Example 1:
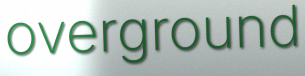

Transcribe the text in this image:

overground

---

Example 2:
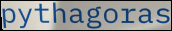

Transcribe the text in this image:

pythagoras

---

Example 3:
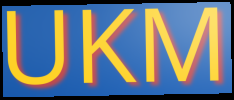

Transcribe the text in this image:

UKM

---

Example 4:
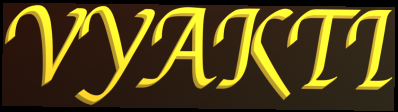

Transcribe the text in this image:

VYAKTI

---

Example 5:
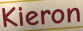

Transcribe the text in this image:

Kieron